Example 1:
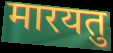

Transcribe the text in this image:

मारयतु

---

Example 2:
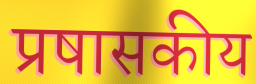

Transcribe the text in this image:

प्रषासकीय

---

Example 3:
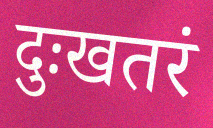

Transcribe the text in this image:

दुःखतरं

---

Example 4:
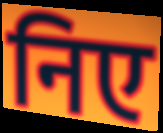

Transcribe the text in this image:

निए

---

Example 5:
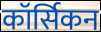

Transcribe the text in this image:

कॉर्सिकन